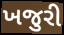
ખજુરી